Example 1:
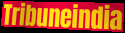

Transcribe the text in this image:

Tribuneindia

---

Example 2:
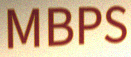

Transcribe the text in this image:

MBPS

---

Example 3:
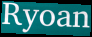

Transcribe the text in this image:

Ryoan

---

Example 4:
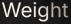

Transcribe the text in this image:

Weight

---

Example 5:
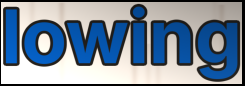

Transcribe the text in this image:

lowing